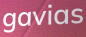
gavias